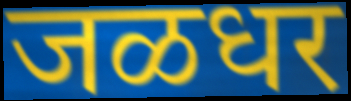
जळधर